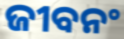
ଜୀବନଂ